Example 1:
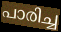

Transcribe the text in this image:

പാരിച്ച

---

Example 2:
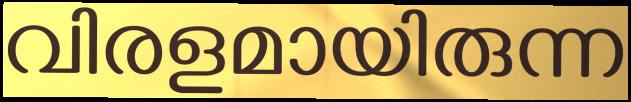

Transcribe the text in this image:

വിരളമായിരുന്ന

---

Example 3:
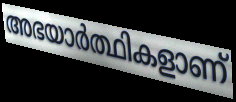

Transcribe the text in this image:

അഭയാർത്ഥികളാണ്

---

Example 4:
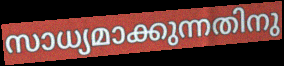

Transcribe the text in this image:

സാധ്യമാക്കുന്നതിനു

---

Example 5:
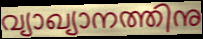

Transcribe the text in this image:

വ്യാഖ്യാനത്തിനു